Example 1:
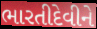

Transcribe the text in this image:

ભારતીદેવીને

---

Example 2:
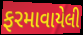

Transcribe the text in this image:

ફરમાવાયેલી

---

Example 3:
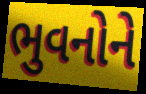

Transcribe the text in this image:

ભુવનોને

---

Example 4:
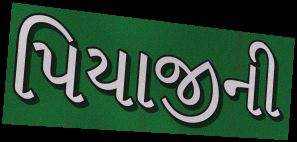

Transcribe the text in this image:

પિયાજીની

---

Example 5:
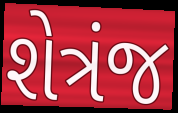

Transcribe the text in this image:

શેત્રંજ